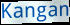
Kangan